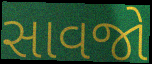
સાવજો